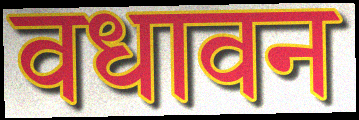
वधावन